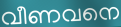
വീണവനെ